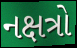
નક્ષત્રો